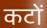
कटों